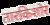
तारकिशोर